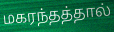
மகரந்தத்தால்